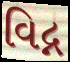
વિદ્ન